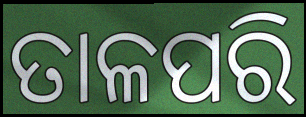
ତାଳପରି